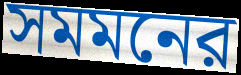
সমমনের